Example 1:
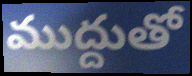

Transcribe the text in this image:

ముద్దుతో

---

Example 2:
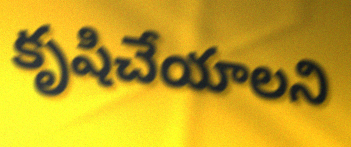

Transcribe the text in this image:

కృషిచేయాలని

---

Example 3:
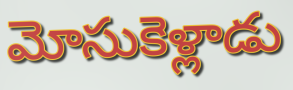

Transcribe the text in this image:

మోసుకెళ్లాడు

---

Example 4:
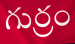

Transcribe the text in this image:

గుర్రం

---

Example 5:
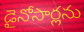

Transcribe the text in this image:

డైనోసార్లను